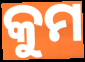
କୁମ